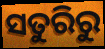
ସତୁରିରୁ